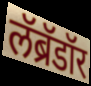
लॅब्रॅडॉर